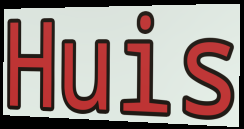
Huis